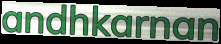
andhkarnan